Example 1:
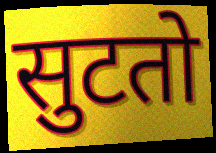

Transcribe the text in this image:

सुटतो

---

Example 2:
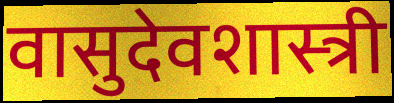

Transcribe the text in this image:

वासुदेवशास्त्री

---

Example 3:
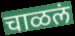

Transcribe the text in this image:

चाळलं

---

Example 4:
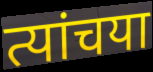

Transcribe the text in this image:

त्यांचया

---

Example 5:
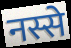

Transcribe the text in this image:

नस्से